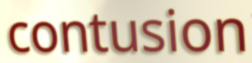
contusion